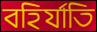
বহির্যাতি